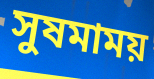
সুষমাময়